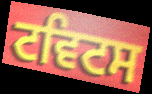
ਟਵਿਟਸ